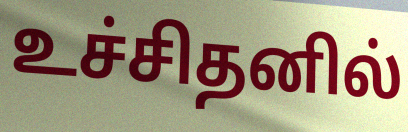
உச்சிதனில்